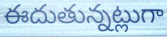
ఈదుతున్నట్లుగా